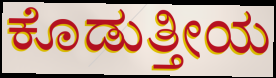
ಕೊಡುತ್ತೀಯ